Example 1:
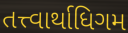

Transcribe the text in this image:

તત્ત્વાર્થાધિગમ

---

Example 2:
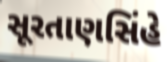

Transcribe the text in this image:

સૂરતાણસિંહે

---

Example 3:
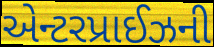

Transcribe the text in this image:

એન્ટરપ્રાઈઝની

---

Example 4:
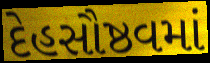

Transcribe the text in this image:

દેહસૌષ્ઠવમાં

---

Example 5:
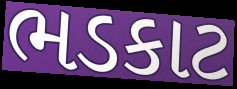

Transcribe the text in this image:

ભડકાટ